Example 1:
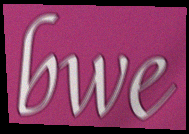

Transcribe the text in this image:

bwe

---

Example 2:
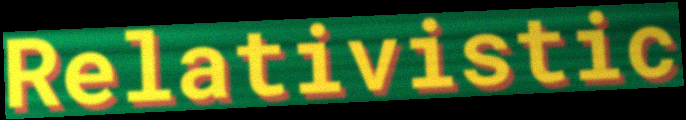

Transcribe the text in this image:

Relativistic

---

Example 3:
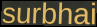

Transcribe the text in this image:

surbhai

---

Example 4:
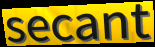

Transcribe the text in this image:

secant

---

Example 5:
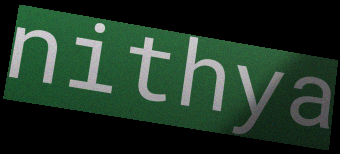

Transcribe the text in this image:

nithya